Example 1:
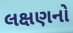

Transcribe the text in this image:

લક્ષણનો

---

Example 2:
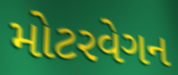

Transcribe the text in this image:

મોટરવેગન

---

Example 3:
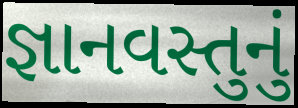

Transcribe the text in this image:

જ્ઞાનવસ્તુનું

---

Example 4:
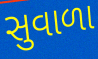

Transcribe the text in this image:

સુવાળા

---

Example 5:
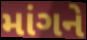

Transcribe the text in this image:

માંગને